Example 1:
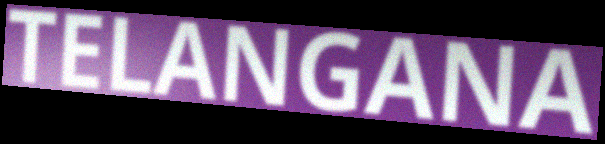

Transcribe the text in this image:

TELANGANA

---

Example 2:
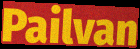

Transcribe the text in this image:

Pailvan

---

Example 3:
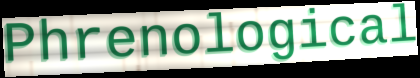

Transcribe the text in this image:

Phrenological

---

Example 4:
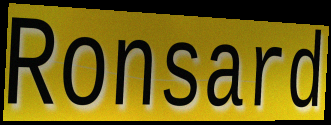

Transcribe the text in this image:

Ronsard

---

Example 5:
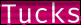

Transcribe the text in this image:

Tucks